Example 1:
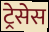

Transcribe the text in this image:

ट्रेसेस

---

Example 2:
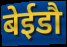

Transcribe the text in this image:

बेईडौ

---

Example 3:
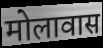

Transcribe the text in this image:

मोलावास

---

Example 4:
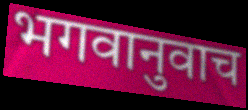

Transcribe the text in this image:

भगवानुवाच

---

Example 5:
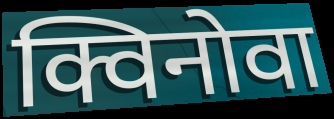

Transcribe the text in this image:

क्विनोवा